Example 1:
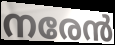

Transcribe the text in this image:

നരേൻ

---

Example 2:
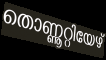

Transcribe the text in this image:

തൊണ്ണൂറ്റിയേഴ്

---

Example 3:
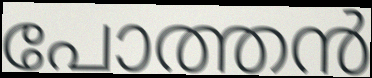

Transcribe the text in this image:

പോത്തൻ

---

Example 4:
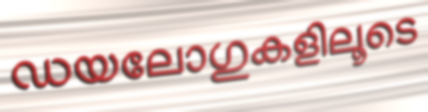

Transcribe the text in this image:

ഡയലോഗുകളിലൂടെ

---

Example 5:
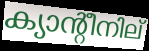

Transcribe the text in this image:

ക്യാന്റീനില്